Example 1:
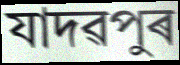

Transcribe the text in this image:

যাদৱপুৰ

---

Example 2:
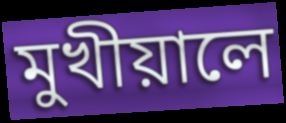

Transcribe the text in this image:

মুখীয়ালে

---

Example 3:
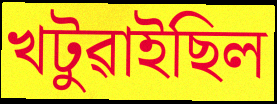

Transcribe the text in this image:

খটুৱাইছিল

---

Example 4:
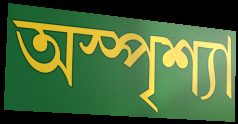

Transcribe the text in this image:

অস্পৃশ্যা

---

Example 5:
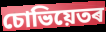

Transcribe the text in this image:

চোভিয়েতৰ